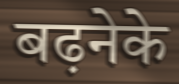
बढ़नेके